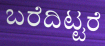
ಬರೆದಿಟ್ಟರೆ